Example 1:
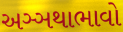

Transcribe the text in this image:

અઞ્ઞથાભાવો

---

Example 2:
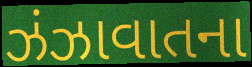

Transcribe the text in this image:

ઝંઝાવાતના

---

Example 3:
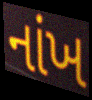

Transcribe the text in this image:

નાંખ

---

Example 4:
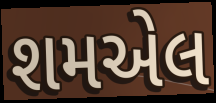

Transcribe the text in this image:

શમએલ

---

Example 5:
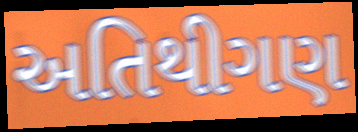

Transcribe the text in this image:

અતિથીગણ